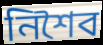
নিশৈব